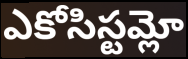
ఎకోసిస్టమ్లో